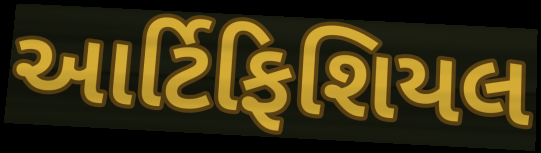
આર્ટિફિશિયલ